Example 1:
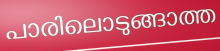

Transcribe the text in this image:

പാരിലൊടുങ്ങാത്ത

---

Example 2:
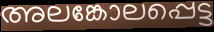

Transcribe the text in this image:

അലങ്കോലപ്പെട്ട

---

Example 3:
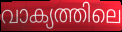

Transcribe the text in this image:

വാക്യത്തിലെ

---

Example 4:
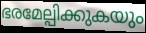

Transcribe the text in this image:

ഭരമേല്പിക്കുകയും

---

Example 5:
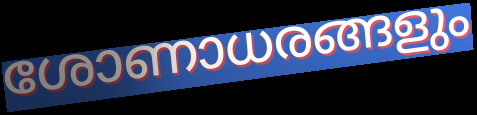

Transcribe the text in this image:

ശോണാധരങ്ങളും